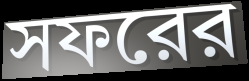
সফরের